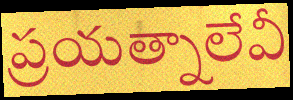
ప్రయత్నాలేవీ